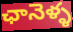
ఛానెళ్ళ